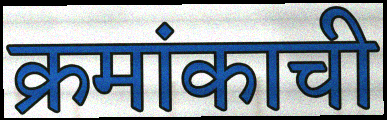
क्रमांकाची